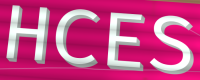
HCES